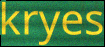
kryes